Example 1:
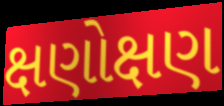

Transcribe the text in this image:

ક્ષણોક્ષણ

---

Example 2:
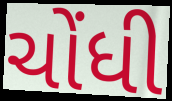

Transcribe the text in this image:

ચોંધી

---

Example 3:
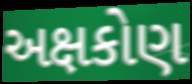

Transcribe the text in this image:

અક્ષકોણ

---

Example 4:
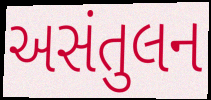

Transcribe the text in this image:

અસંતુલન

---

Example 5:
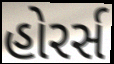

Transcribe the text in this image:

હોરર્સ